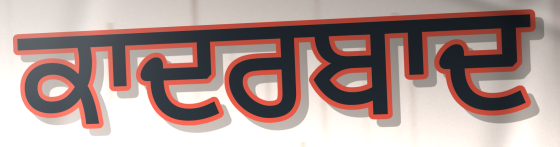
ਕਾਦਰਬਾਦ